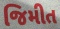
જિમીત